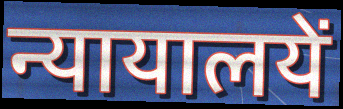
न्यायालयें